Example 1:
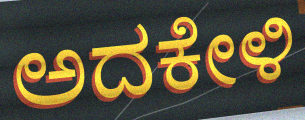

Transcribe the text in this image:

ಅದಕೇಳಿ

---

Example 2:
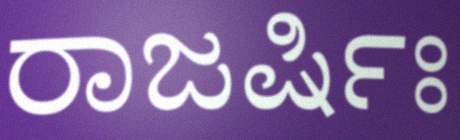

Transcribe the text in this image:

ರಾಜರ್ಷಿಃ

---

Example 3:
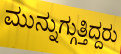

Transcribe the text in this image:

ಮುನ್ನುಗ್ಗುತ್ತಿದ್ದರು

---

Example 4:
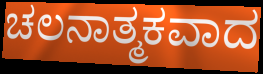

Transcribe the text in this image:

ಚಲನಾತ್ಮಕವಾದ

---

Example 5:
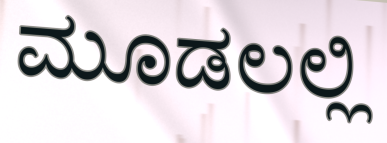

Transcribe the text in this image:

ಮೂಡಲಲ್ಲಿ